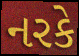
નરકે